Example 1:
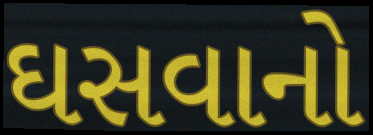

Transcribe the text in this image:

ઘસવાનો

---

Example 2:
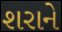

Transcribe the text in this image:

શરાને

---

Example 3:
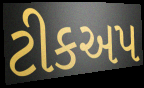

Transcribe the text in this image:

ટીકઅપ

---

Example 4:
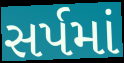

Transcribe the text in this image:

સર્પમાં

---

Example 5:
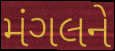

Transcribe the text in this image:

મંગલને